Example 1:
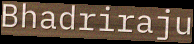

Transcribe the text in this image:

Bhadriraju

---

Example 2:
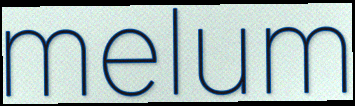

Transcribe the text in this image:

melum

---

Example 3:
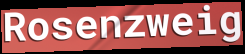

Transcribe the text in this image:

Rosenzweig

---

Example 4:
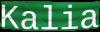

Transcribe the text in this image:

Kalia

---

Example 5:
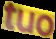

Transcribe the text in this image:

tuo